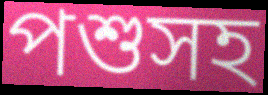
পশুসহ